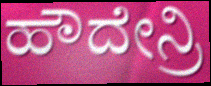
ಹೌದೇನ್ರಿ